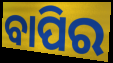
ବାପିର